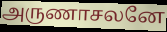
அருணாசலனே